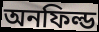
অনফিল্ড